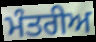
ਮੰਤਰੀਅ